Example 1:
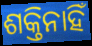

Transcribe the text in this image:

ଶକ୍ତିନାହିଁ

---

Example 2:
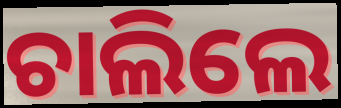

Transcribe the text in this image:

ଚାଲିଲେ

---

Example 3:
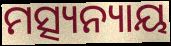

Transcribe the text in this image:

ମତ୍ସ୍ୟନ୍ୟାୟ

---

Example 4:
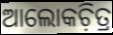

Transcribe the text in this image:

ଆଲୋକଚ଼ିତ୍ର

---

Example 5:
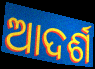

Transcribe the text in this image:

ଆଦର୍ଶ